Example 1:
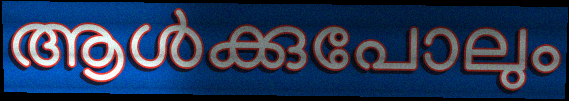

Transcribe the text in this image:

ആൾക്കുപോലും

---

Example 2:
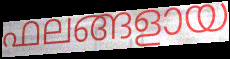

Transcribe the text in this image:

ഫലങ്ങളായ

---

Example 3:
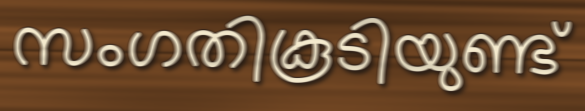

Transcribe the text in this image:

സംഗതികൂടിയുണ്ട്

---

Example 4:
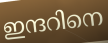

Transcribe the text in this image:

ഇന്ദറിനെ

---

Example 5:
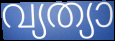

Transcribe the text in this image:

വ്യത്യാ